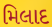
મિલાદ